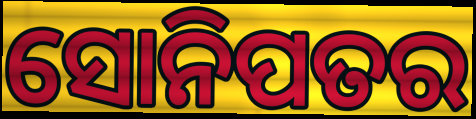
ସୋନିପତର